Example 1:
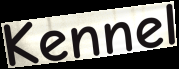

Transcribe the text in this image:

Kennel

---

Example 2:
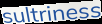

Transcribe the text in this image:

sultriness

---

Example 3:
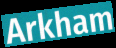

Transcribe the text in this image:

Arkham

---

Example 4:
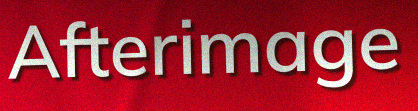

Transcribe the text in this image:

Afterimage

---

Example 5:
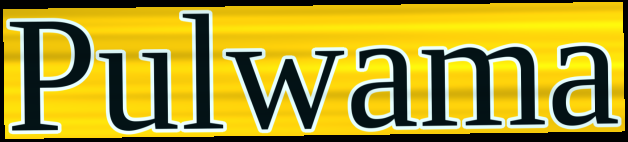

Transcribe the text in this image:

Pulwama